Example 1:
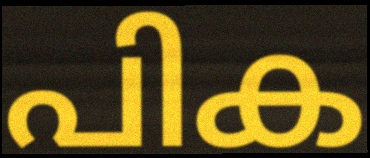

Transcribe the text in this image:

പിക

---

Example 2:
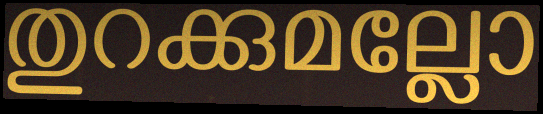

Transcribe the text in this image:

തുറക്കുമല്ലോ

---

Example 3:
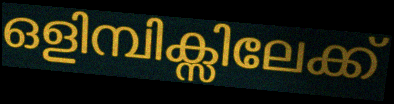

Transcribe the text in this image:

ഒളിമ്പിക്സിലേക്ക്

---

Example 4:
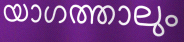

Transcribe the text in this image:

യാഗത്താലും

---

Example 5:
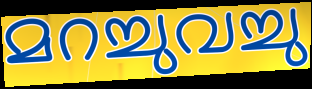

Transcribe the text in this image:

മറച്ചുവച്ചു